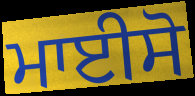
ਮਾਈਸੋ